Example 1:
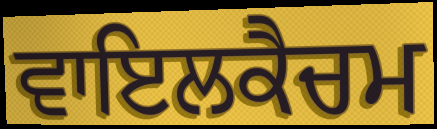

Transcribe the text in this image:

ਵਾਇਲਕੈਚਮ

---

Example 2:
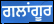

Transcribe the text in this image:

ਗਲਾਂਗੂਰ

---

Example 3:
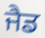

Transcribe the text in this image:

ਜੈਡ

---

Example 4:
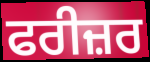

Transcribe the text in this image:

ਫਰੀਜ਼ਰ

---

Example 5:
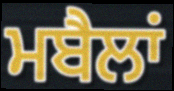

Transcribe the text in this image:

ਮਬੈਲਾਂ